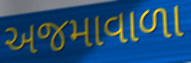
અજમાવાળા